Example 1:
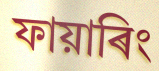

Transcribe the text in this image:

ফায়াৰিং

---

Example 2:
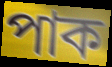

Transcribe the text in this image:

পাক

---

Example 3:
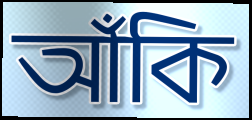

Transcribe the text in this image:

আঁকি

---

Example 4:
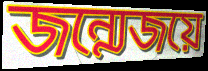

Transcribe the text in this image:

জন্মেজয়ে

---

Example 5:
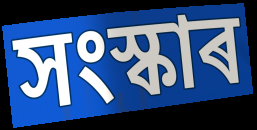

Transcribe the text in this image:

সংস্কাৰ